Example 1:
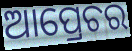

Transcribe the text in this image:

ଆପ୍ରେଚର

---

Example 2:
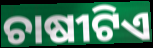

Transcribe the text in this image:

ଚାଷୀଟିଏ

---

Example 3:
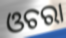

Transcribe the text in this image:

ଓଚରା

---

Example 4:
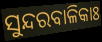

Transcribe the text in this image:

ସୁନ୍ଦରବାଳିକାଃ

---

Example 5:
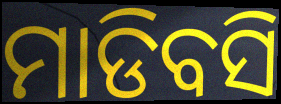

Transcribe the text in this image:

ମାଡିବସି